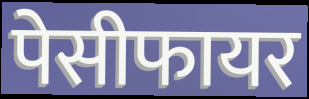
पेसीफायर